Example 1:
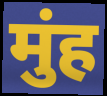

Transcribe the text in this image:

मुंह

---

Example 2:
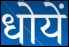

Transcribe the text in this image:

धोयें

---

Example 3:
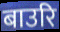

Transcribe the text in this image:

बाउरि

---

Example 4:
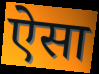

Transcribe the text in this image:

ऐेसा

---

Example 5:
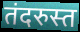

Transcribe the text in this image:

तंदरुस्त